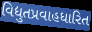
વિદ્યુતપ્રવાહધારિત